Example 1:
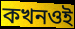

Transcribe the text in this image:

কখনওই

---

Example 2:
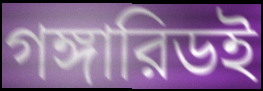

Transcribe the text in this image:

গঙ্গারিডই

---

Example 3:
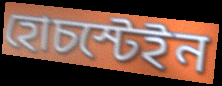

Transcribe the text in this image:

হোচস্টেইন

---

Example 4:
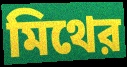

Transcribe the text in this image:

মিথের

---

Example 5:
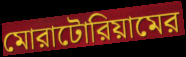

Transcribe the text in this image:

মোরাটোরিয়ামের